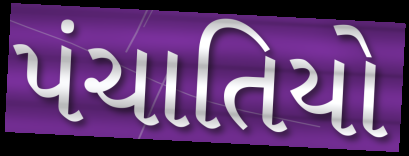
પંચાતિયો